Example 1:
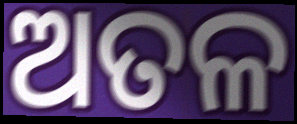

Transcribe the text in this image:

ଅତଳ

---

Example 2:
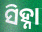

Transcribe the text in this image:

ସିହ୍ନା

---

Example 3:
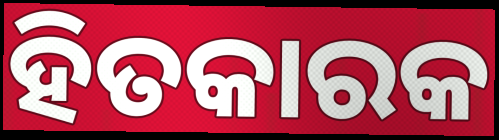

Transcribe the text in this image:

ହିତକାରକ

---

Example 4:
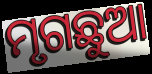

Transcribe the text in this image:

ମୃଗଛୁଆ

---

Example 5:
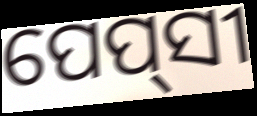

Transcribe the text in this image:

ପେପ୍‌ସୀ